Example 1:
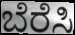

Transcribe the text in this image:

ಬೆರೆಸಿ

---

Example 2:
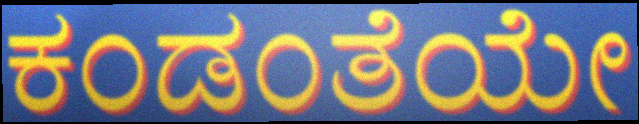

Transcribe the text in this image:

ಕಂಡಂತೆಯೇ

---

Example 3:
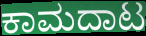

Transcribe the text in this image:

ಕಾಮದಾಟ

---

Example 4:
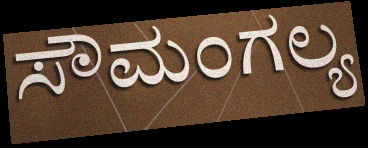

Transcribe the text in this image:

ಸೌಮಂಗಲ್ಯ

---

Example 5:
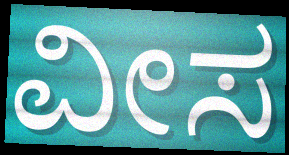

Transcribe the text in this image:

ವೀಸ